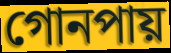
গোনপায়